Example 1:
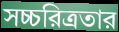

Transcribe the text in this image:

সচ্চরিত্রতার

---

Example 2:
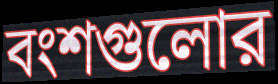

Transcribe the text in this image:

বংশগুলোর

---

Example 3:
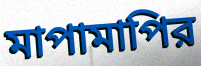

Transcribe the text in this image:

মাপামাপির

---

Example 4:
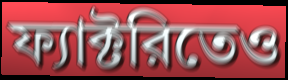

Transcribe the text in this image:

ফ্যাক্টরিতেও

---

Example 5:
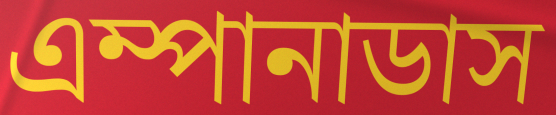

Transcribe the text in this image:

এম্পানাডাস